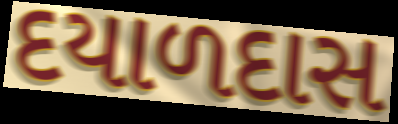
દયાળદાસ